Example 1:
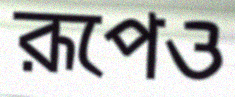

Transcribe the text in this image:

রূপেও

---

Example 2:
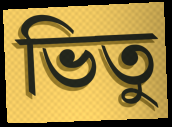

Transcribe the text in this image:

ভিতু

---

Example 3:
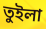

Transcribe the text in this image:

তুইলা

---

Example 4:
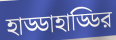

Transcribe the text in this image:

হাড্ডাহাড্ডির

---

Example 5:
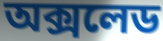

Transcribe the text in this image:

অক্সলেড